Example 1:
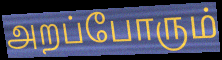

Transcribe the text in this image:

அறப்போரும்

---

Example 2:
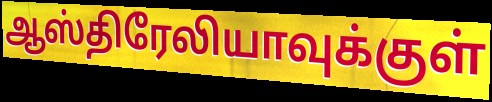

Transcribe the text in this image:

ஆஸ்திரேலியாவுக்குள்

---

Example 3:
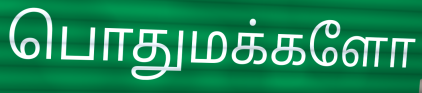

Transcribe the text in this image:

பொதுமக்களோ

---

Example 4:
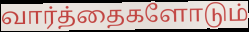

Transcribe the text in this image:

வார்த்தைகளோடும்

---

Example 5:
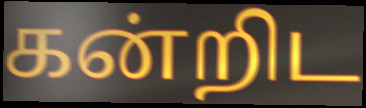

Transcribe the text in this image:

கன்றிட